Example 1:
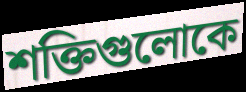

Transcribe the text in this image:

শক্তিগুলোকে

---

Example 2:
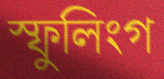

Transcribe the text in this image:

স্ফুলিংগ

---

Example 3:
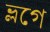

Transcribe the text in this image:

ভ্লগে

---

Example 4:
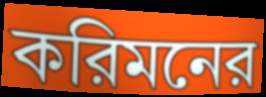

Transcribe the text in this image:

করিমনের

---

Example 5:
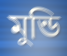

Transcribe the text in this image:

মুন্ডি